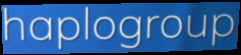
haplogroup